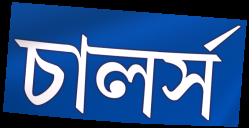
চালর্স